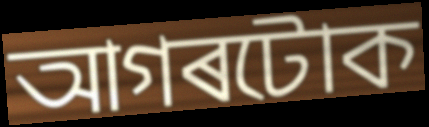
আগৰটোক